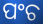
ପଂଚ